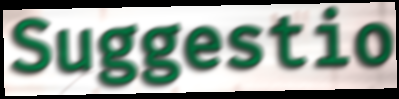
Suggestio